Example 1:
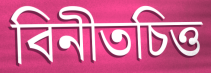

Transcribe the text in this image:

বিনীতচিত্ত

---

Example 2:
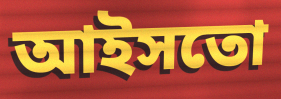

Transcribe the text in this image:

আইসতো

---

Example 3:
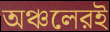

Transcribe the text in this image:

অঞ্চলেরই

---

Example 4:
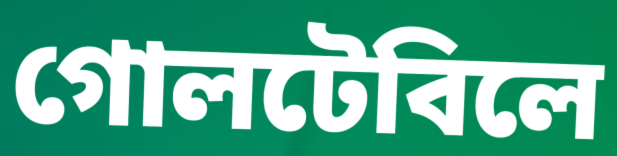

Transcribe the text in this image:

গোলটেবিলে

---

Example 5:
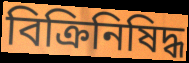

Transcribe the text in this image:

বিক্রিনিষিদ্ধ